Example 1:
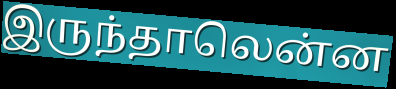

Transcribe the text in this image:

இருந்தாலென்ன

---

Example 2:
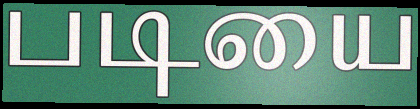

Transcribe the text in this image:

படியை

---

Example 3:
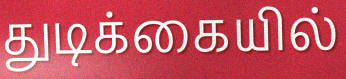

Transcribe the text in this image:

துடிக்கையில்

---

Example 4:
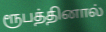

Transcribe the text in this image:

ரூபத்தினால்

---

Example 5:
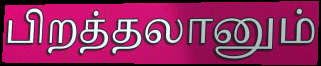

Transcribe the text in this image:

பிறத்தலானும்